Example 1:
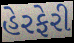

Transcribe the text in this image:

હેરફેરી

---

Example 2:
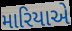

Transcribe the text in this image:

મારિયાએ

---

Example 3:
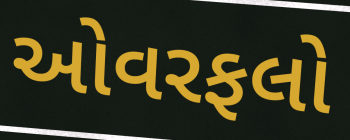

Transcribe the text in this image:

ઓવરફલો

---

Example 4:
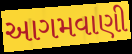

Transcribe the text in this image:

આગમવાણી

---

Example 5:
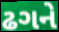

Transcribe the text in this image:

ઢગને